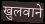
खुलवाने